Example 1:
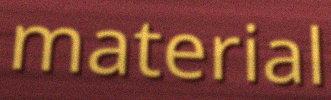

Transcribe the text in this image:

material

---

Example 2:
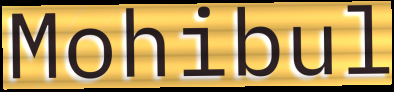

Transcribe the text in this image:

Mohibul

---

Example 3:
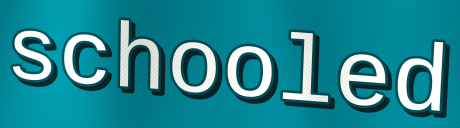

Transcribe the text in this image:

schooled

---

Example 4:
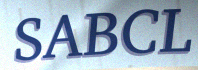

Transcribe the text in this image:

SABCL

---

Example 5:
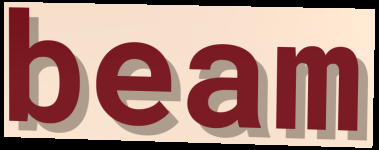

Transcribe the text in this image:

beam